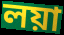
লয়া